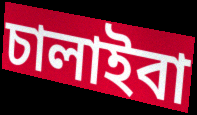
চালাইবা